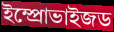
ইম্প্রোভাইজড